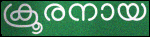
ക്രൂരനായ